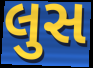
લુસ